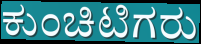
ಕುಂಚಿಟಿಗರು